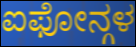
ಐಫೋನ್ಗಳ